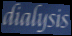
dialysis